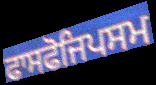
ਫਾਸਫੋਜਿਪਸਮ